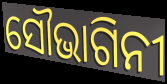
ସୌଭାଗିନୀ